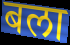
बला